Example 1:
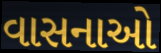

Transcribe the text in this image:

વાસનાઓ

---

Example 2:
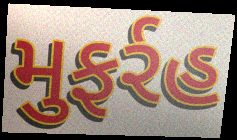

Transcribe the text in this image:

મુફર્રહ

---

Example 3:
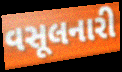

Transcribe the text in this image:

વસૂલનારી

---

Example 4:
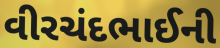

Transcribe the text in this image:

વીરચંદભાઈની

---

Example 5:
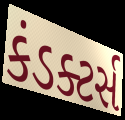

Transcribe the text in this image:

કંડક્ટર્સ